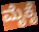
ಮೈಕೈ